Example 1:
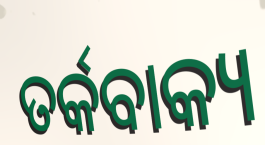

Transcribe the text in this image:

ତର୍କବାକ୍ୟ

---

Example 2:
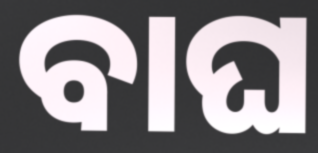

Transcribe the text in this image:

ବାଘ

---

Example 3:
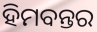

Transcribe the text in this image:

ହିମବନ୍ତର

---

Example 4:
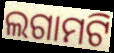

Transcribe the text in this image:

ଲଗାମଟି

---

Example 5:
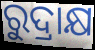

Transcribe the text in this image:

ରୁଦ୍ରାକ୍ଷ